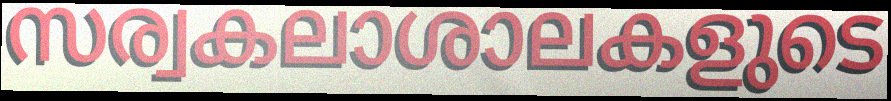
സര്വകലാശാലകളുടെ